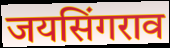
जयसिंगराव